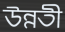
উন্নতী